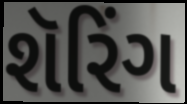
શૅરિંગ